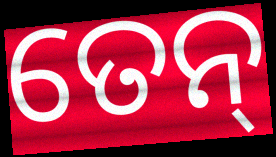
ତେନ୍